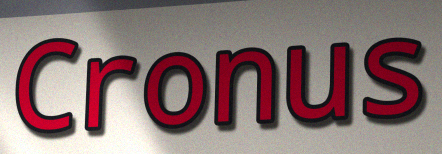
Cronus